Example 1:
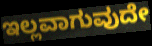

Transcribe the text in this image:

ಇಲ್ಲವಾಗುವುದೇ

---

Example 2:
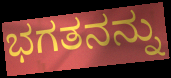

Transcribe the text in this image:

ಭಗತನನ್ನು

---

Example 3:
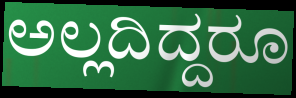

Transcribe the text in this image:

ಅಲ್ಲದಿದ್ದರೂ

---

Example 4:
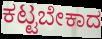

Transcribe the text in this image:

ಕಟ್ಟಬೇಕಾದ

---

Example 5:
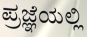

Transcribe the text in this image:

ಪ್ರಜ್ಞೆಯಲ್ಲಿ